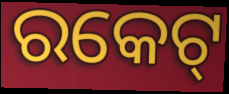
ରକେଟ୍